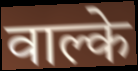
वाल्के